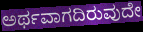
ಅರ್ಥವಾಗದಿರುವುದೇ